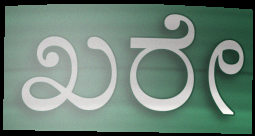
ಖರೇ